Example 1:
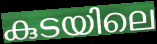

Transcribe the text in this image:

കുടയിലെ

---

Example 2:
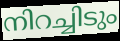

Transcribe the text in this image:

നിറച്ചിടും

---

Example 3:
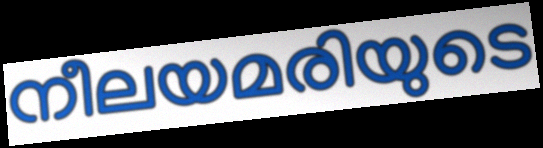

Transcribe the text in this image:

നീലയമരിയുടെ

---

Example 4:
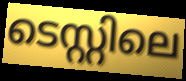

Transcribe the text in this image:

ടെസ്റ്റിലെ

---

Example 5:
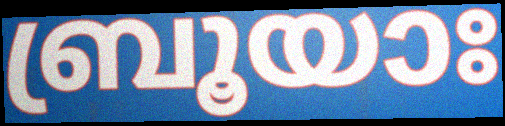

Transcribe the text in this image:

ബ്രൂയാഃ